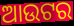
ଆଉଟର